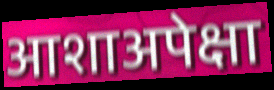
आशाअपेक्षा